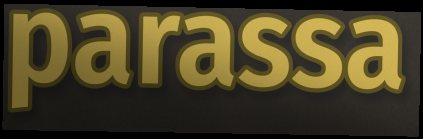
parassa